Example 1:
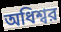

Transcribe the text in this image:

অধিশ্বর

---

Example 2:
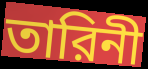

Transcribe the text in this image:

তারিনী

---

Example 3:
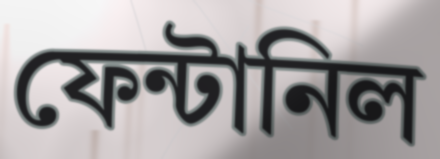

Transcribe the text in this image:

ফেন্টানিল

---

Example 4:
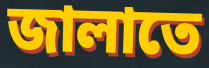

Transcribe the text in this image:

জালাতে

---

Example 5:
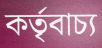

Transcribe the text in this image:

কর্তৃবাচ্য